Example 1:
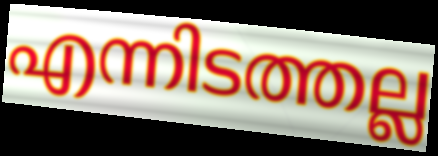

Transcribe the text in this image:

എന്നിടത്തല്ല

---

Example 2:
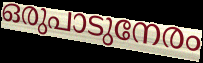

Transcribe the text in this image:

ഒരുപാടുനേരം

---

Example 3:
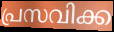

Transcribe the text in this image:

പ്രസവിക്ക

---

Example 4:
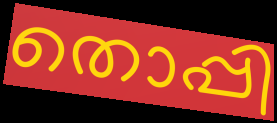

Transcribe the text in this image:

തൊപ്പി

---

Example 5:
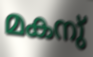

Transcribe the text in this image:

മകനു്